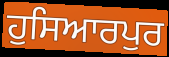
ਹੁਸਿਆਰਪੁਰ